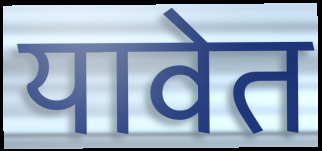
यावेत